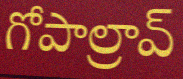
గోపాల్రావ్